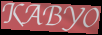
KABYO